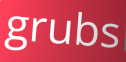
grubs